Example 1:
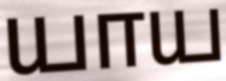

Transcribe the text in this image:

யாய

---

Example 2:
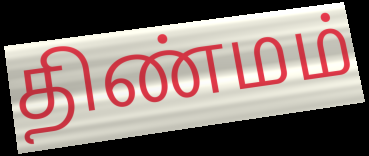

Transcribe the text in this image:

திண்மம்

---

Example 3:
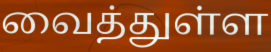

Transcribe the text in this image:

வைத்துள்ள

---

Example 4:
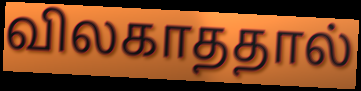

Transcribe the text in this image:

விலகாததால்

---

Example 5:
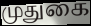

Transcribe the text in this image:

முதுகை